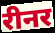
रीनर